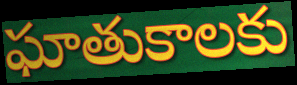
ఘాతుకాలకు